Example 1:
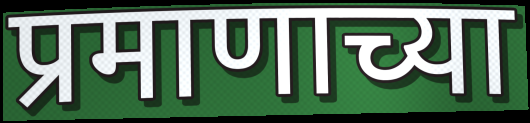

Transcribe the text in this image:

प्रमाणाच्या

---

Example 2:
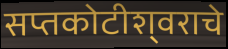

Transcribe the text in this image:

सप्तकोटीश्वराचे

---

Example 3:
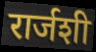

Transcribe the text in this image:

रार्जशी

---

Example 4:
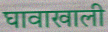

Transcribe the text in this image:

घावाखाली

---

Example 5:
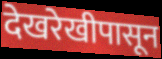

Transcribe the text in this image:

देखरेखीपासून